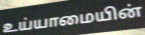
உய்யாமையின்